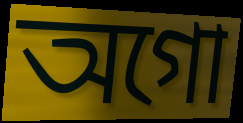
অগো